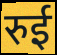
रुई